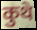
कुथे